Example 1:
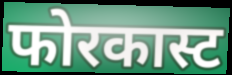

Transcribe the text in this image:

फोरकास्ट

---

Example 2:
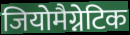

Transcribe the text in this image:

जियोमैग्नेटिक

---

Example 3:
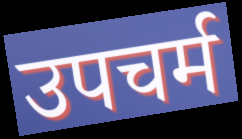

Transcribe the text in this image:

उपचर्म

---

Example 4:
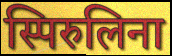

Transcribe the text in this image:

स्पिरुलिना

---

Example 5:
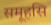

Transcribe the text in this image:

समूहसि